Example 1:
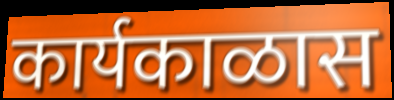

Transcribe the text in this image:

कार्यकाळास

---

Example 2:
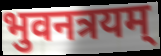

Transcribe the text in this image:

भुवनत्रयम्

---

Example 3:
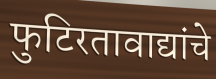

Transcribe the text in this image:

फुटिरतावाद्यांचे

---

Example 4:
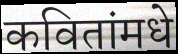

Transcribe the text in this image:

कवितांमधे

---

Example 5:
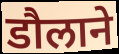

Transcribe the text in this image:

डौलाने